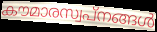
കൗമാരസ്വപ്നങ്ങൾ